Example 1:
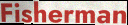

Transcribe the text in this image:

Fisherman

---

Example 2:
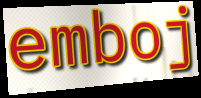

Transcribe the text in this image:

emboj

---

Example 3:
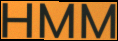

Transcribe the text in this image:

HMM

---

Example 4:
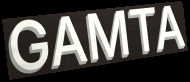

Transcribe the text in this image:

GAMTA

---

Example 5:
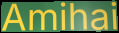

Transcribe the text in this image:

Amihai